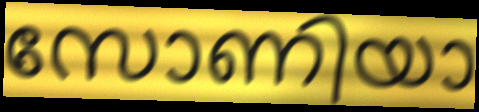
സോണിയാ